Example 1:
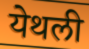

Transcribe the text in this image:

येथली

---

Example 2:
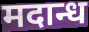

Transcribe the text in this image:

मदान्ध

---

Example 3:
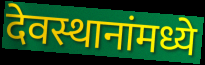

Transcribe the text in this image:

देवस्थानांमध्ये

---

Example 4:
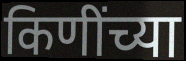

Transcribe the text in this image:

किणींच्या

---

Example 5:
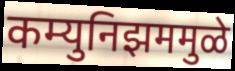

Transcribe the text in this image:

कम्युनिझममुळे